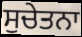
ਸੁਚੇਤਨਾ